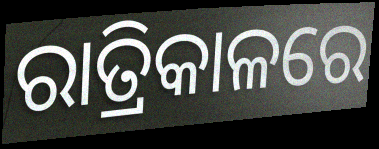
ରାତ୍ରିକାଳରେ